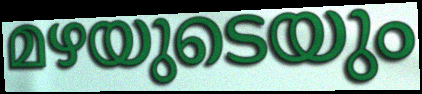
മഴയുടെയും